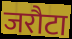
जरौटा